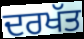
ਦਰਖੱਤ